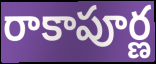
రాకాపూర్ణ